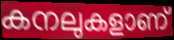
കനലുകളാണ്